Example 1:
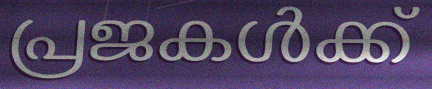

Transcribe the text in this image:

പ്രജകൾക്ക്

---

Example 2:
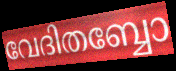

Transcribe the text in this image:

വേദിതബ്ബോ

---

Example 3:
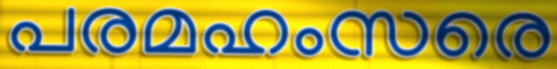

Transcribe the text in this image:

പരമഹംസരെ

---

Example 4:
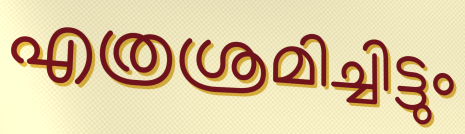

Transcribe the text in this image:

എത്രശ്രമിച്ചിട്ടും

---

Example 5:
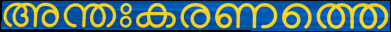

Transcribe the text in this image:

അന്തഃകരണത്തെ